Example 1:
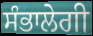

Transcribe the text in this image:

ਸੰਭਾਲੇਗੀ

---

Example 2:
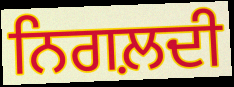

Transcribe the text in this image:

ਨਿਗਲ਼ਦੀ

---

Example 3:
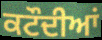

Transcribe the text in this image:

ਕਟੌਦੀਆਂ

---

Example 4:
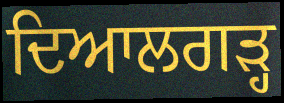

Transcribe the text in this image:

ਦਿਆਲਗੜ੍ਹ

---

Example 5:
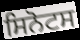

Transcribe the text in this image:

ਸਿਨੋਟਸ